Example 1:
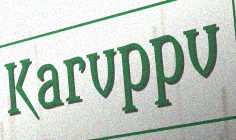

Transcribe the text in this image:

Karuppu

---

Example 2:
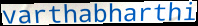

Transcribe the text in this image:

varthabharthi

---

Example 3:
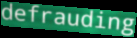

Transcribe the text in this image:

defrauding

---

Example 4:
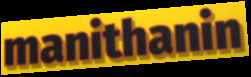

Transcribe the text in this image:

manithanin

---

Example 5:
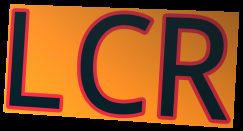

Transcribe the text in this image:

LCR